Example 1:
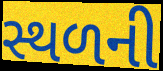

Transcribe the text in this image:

સ્થળની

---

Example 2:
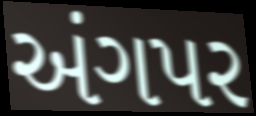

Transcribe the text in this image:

અંગપર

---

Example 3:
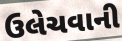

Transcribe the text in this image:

ઉલેચવાની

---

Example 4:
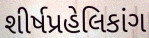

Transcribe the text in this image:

શીર્ષપ્રહેલિકાંગ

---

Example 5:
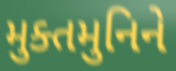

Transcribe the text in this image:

મુક્તમુનિને